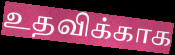
உதவிக்காக